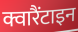
क्वारैंटाइन